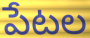
పేటల